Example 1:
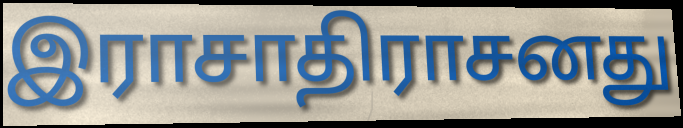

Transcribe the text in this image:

இராசாதிராசனது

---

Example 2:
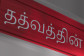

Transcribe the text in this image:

தத்வத்தின்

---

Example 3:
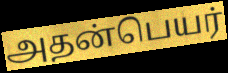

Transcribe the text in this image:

அதன்பெயர்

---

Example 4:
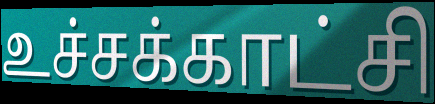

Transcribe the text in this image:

உச்சக்காட்சி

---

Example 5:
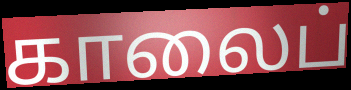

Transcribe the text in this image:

காலைப்